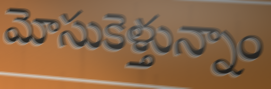
మోసుకెళ్తున్నాం